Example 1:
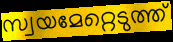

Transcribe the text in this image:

സ്വയമേറ്റെടുത്ത്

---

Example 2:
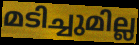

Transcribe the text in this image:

മടിച്ചുമില്ല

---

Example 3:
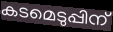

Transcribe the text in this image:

കടമെടുപ്പിന്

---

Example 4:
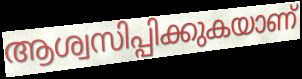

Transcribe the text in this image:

ആശ്വസിപ്പിക്കുകയാണ്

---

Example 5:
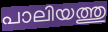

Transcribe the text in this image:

പാലിയത്തു